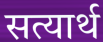
सत्यार्थ